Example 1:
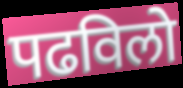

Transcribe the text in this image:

पढविलो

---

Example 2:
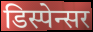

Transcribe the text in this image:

डिस्पेन्सर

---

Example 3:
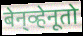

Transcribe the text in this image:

बेन्‌व्हेनूतो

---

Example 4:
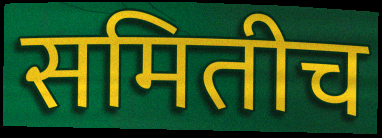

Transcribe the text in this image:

समितीच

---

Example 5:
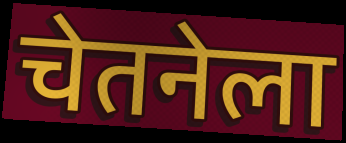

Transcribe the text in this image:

चेतनेला